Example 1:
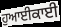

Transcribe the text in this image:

ਹੁਆਈਕਾਈ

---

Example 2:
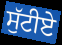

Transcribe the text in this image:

ਸੁੱਟੀਏ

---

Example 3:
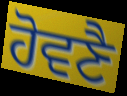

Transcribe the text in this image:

ਹੋਵਣੈ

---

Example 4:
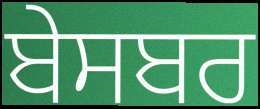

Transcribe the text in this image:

ਬੇਸਬਰ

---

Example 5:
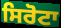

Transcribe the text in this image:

ਸਿਰੋਟਾ